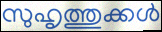
സുഹൃത്തുക്കൾ